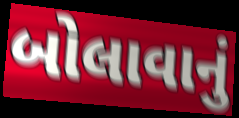
બોલાવાનું